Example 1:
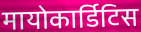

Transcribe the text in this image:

मायोकार्डिटिस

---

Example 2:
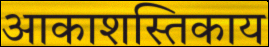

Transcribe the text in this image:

आकाशस्तिकाय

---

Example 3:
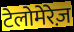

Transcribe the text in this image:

टेलोमेरेज़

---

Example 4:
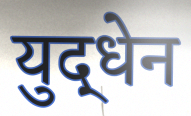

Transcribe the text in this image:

युद्धेन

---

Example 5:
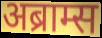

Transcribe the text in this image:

अब्राम्स